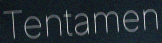
Tentamen